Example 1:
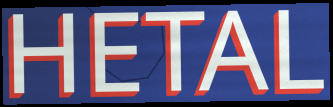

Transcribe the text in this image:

HETAL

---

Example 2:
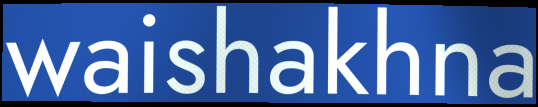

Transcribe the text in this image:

waishakhna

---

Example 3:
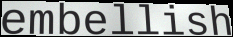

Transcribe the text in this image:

embellish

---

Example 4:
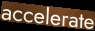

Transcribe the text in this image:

accelerate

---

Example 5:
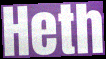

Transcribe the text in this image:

Heth